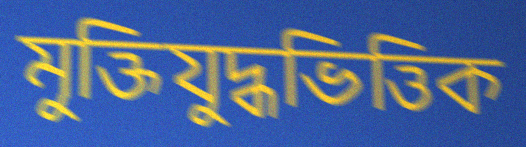
মুক্তিযুদ্ধভিত্তিক